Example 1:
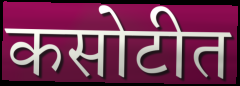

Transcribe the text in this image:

कसोटीत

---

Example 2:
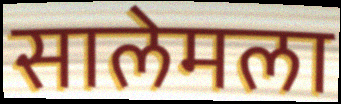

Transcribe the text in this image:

सालेमला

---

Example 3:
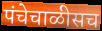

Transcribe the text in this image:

पंचेचाळीसच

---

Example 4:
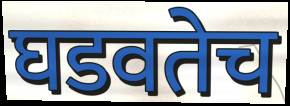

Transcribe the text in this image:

घडवतेच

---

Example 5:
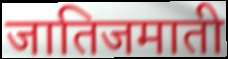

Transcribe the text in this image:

जातिजमाती